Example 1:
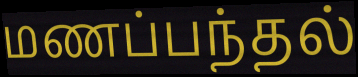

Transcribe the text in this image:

மணப்பந்தல்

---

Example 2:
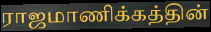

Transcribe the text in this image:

ராஜமாணிக்கத்தின்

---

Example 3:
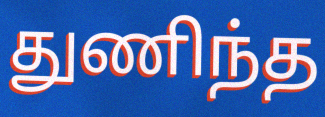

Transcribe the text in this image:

துணிந்த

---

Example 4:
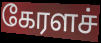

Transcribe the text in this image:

கேரளச்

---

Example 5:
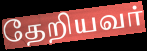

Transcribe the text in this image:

தேறியவர்